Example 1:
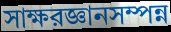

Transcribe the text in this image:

সাক্ষরজ্ঞানসম্পন্ন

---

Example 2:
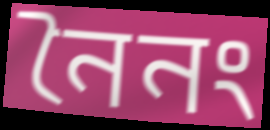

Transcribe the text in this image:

নৈনং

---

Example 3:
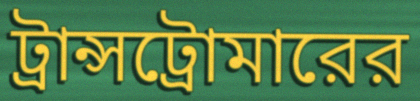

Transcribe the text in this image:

ট্রান্সট্রোমারের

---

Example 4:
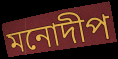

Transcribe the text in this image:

মনোদীপ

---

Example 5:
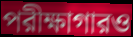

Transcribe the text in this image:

পরীক্ষাগারও